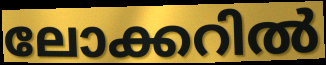
ലോക്കറിൽ